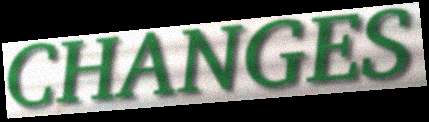
CHANGES